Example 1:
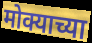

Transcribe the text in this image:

मोक्याच्या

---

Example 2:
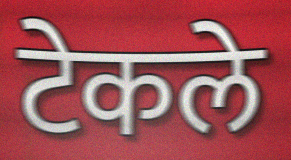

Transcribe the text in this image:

टेकले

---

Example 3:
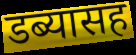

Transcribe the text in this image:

डब्यासह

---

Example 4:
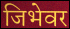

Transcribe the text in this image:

जिभेवर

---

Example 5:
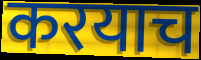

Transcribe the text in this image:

करयाच